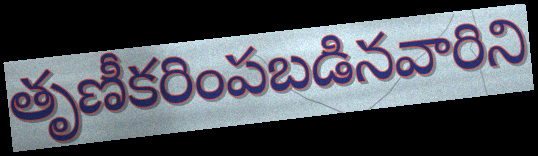
తృణీకరింపబడినవారిని